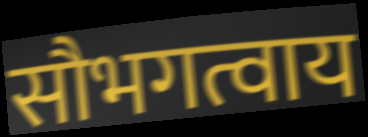
सौभगत्वाय